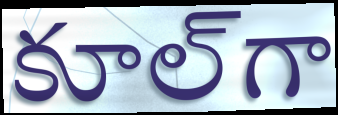
కూల్‌గా